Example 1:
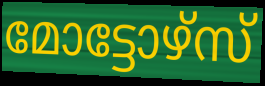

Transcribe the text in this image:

മോട്ടോഴ്സ്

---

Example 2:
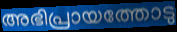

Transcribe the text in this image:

അഭിപ്രായത്തോടു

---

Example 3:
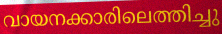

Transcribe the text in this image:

വായനക്കാരിലെത്തിച്ചു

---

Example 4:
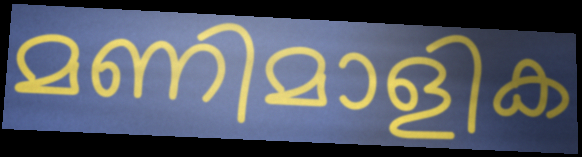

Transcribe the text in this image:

മണിമാളിക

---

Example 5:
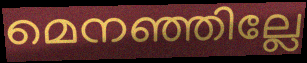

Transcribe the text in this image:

മെനഞ്ഞില്ലേ